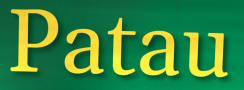
Patau